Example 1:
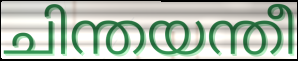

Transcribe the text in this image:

ചിന്തയന്തീ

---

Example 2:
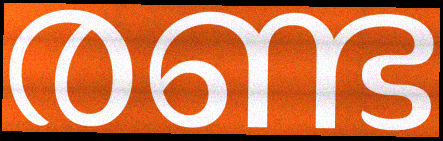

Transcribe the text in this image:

രണ്ട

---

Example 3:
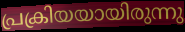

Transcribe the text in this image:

പ്രക്രിയയായിരുന്നു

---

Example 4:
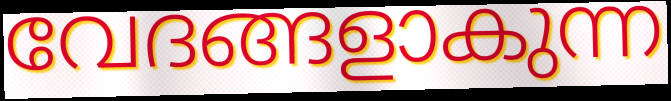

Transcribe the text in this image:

വേദങ്ങളാകുന്ന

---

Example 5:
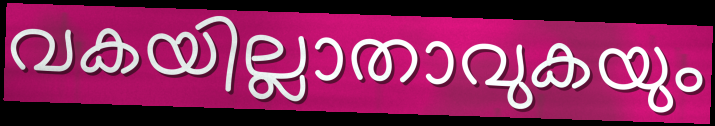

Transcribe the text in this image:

വകയില്ലാതാവുകയും